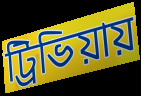
ট্রিভিয়ায়